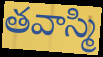
తవాస్మి